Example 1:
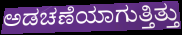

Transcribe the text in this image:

ಅಡಚಣೆಯಾಗುತ್ತಿತ್ತು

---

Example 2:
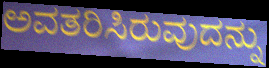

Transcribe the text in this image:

ಅವತರಿಸಿರುವುದನ್ನು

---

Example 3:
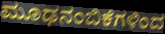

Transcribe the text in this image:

ಮೂಢನಂಬಿಕೆಗಳಿಂದ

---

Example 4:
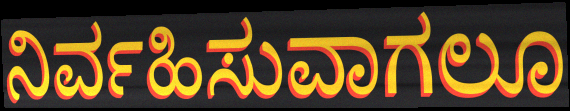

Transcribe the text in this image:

ನಿರ್ವಹಿಸುವಾಗಲೂ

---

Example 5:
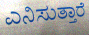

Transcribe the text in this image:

ಎನಿಸುತ್ತಾರೆ